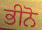
ਭੀਨੋ